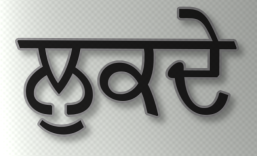
ਲੁਕਦੇ